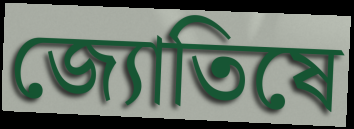
জ্যোতিষে